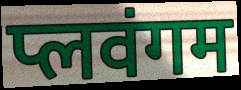
प्लवंगम